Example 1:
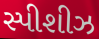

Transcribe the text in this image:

સ્પીશીઝ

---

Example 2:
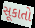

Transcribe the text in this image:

સૂકાતો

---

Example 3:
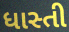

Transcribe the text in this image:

ધાસ્તી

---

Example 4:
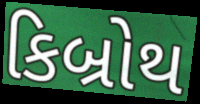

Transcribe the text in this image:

કિબ્રોથ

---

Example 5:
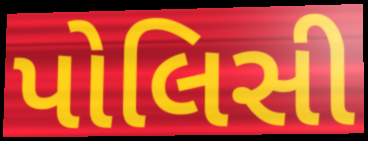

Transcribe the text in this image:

પોલિસી